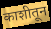
काशीतून